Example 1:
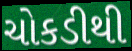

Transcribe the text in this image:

ચોકડીથી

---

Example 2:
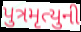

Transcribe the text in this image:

પુત્રમૃત્યુની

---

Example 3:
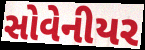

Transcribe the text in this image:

સોવેનીયર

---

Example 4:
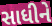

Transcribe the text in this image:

સાધીને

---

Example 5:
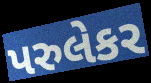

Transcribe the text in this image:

પરુલેકર